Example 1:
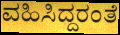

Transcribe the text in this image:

ವಹಿಸಿದ್ದರಂತೆ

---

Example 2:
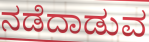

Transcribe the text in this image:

ನಡೆದಾಡುವ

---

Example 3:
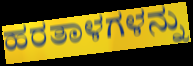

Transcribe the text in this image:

ಹರತಾಳಗಳನ್ನು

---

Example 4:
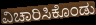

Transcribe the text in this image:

ವಿಚಾರಿಸಿಕೊಂಡು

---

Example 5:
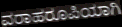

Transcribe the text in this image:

ವರಾಹರೂಪಿಯಾಗಿ